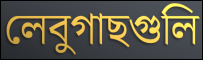
লেবুগাছগুলি